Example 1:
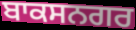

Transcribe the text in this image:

ਬਾਕਸਨਗਰ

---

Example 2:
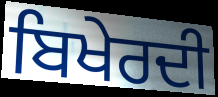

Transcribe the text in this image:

ਬਿਖੇਰਦੀ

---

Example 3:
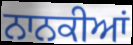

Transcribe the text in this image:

ਨਾਨਕੀਆਂ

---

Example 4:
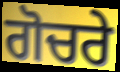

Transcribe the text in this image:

ਗੋਚਰੇ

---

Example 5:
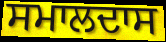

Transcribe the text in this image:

ਸਮਾਲਦਾਸ